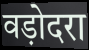
वड़ोदरा